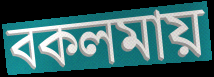
বকলমায়